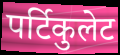
पर्टिकुलेट